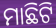
ମାଛିଟି